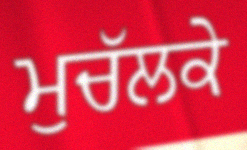
ਮੁਚੱਲਕੇ